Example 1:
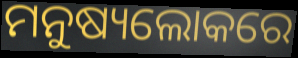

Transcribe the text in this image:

ମନୁଷ୍ୟଲୋକରେ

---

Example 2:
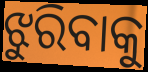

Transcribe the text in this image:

ଝୁରିବାକୁ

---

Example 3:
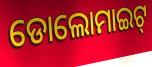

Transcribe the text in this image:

ଡୋଲୋମାଇଟ୍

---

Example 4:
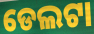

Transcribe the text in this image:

ଡେଲଟା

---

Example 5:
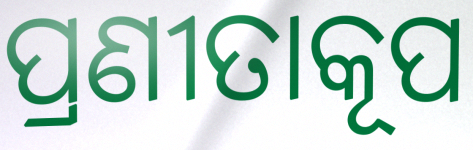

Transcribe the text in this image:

ପ୍ରଣୀତାକୂପ